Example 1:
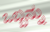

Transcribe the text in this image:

ಒಬ್ಬನ್ನು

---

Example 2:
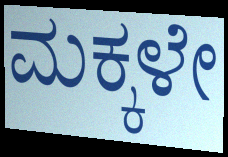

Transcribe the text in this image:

ಮಕ್ಕಳೇ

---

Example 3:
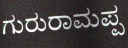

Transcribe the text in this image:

ಗುರುರಾಮಪ್ಪ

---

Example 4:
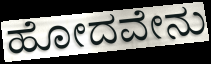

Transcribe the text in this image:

ಹೋದವೇನು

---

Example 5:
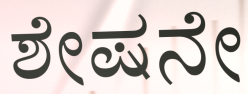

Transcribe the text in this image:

ಶೇಷನೇ